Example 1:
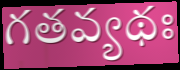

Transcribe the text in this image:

గతవ్యథః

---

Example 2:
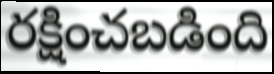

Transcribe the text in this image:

రక్షించబడింది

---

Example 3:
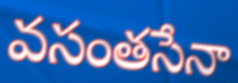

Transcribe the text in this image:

వసంతసేనా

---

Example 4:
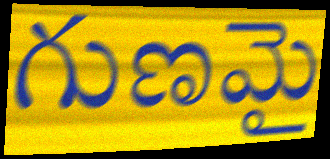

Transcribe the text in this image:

గుణమై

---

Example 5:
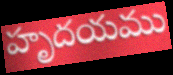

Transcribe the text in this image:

హృదయము